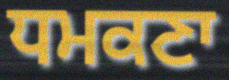
ਧਮਕਣਾ